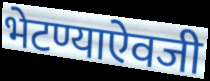
भेटण्याऐवजी